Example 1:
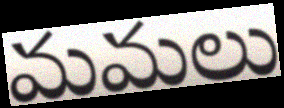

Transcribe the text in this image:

మమలు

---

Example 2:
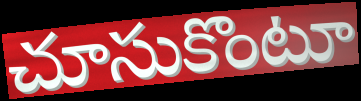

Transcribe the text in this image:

చూసుకొంటూ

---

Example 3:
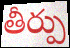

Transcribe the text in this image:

తీర్పు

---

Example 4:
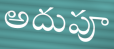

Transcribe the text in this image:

అదుపూ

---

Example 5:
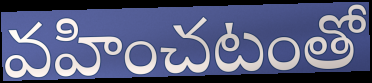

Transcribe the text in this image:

వహించటంతో